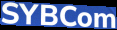
SYBCom